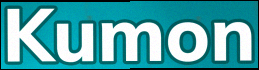
Kumon